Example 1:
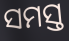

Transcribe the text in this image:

ସମସ୍ତ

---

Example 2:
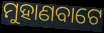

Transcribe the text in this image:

ମୁହାଣବାଟେ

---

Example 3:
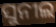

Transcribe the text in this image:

ସୁନୀଲ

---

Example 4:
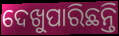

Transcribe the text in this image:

ଦେଖୁପାରିଛନ୍ତି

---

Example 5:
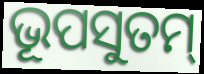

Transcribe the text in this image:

ଭୂପସୁତମ୍